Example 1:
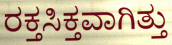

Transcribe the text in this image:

ರಕ್ತಸಿಕ್ತವಾಗಿತ್ತು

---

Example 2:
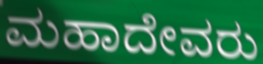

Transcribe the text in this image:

ಮಹಾದೇವರು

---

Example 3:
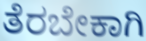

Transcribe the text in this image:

ತೆರಬೇಕಾಗಿ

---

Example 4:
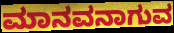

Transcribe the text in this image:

ಮಾನವನಾಗುವ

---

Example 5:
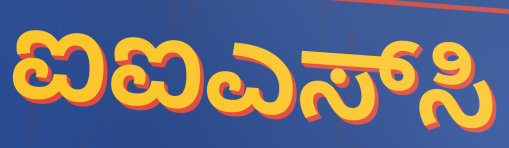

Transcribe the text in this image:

ಐಐಎಸ್‌ಸಿ